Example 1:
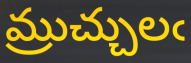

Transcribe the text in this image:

మ్రుచ్చులఁ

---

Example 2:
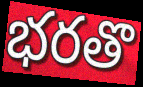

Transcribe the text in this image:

భరతొ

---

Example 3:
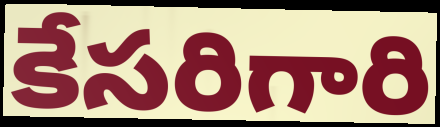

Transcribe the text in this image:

కేసరిగారి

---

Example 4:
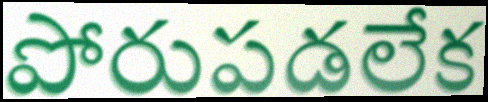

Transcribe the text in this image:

పోరుపడలేక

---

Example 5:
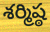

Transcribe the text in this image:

శర్మిష్ఠ